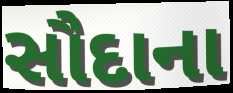
સૌદાના